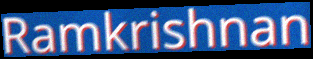
Ramkrishnan